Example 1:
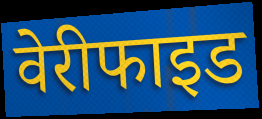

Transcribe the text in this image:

वेरीफाइड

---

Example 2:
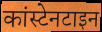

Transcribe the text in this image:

कांस्टेनटाइन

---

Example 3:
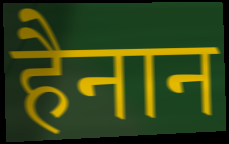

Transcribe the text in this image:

हैनान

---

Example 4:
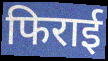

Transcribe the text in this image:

फिराई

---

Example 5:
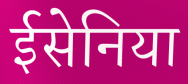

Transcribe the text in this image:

ईसेनिया